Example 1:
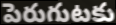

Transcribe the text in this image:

పెరుగుటకు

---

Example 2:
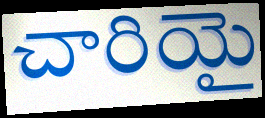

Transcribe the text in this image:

చారియై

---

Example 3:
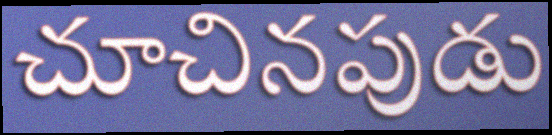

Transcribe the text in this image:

చూచినపుడు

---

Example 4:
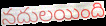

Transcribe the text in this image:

నదులయింది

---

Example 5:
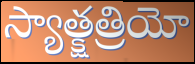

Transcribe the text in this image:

స్యాత్క్షత్రియో